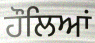
ਹੌਲਿਆਂ